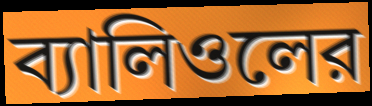
ব্যালিওলের